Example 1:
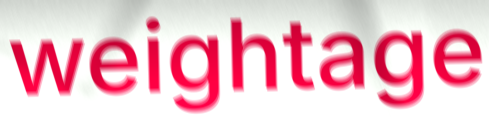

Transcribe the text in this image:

weightage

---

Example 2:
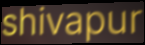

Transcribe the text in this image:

shivapur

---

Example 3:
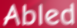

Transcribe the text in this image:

Abled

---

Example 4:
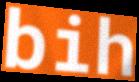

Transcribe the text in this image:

bih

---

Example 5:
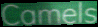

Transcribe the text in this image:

Camels